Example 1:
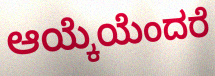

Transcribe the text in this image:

ಆಯ್ಕೆಯೆಂದರೆ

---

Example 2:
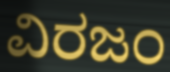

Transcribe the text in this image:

ವಿರಜಂ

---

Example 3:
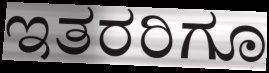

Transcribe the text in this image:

ಇತರರಿಗೂ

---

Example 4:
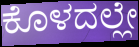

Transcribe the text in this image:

ಕೊಳದಲ್ಲೇ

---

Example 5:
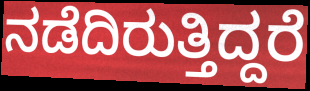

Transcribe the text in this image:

ನಡೆದಿರುತ್ತಿದ್ದರೆ